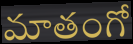
మాతంగో